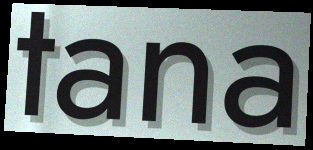
tana